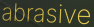
abrasive